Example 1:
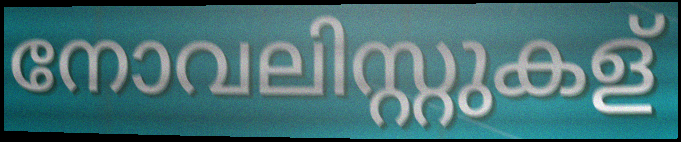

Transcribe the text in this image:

നോവലിസ്റ്റുകള്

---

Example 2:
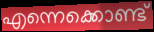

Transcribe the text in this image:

എന്നെക്കൊണ്ട്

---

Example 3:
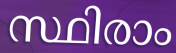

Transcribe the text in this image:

സ്ഥിരാം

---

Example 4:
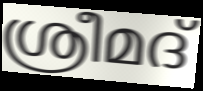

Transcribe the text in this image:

ശ്രീമദ്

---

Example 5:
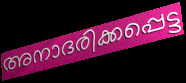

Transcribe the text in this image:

അനാദരിക്കപ്പെട്ട